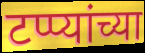
टप्प्यांच्या